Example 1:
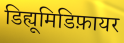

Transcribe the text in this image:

डिह्यूमिडिफ़ायर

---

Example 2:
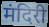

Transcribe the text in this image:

मंदिरी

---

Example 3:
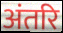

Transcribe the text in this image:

अंतरि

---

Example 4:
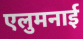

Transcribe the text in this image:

एलुमनाई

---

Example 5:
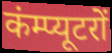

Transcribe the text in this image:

कंम्प्यूटरों